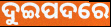
ଦୁଇପଦରେ